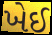
ખેઈ